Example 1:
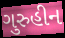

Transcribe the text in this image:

ગુરુહીન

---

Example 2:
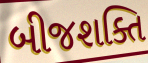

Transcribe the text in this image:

બીજશક્તિ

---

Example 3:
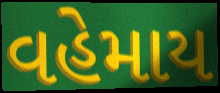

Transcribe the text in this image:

વહેમાય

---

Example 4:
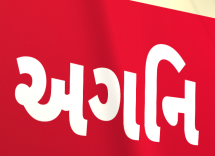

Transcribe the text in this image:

અગનિ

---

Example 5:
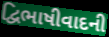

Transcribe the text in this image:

દ્વિભાષીવાદની